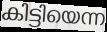
കിട്ടിയെന്ന